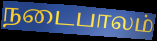
நடைபாலம்